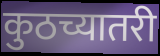
कुठच्यातरी